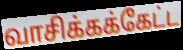
வாசிக்கக்கேட்ட